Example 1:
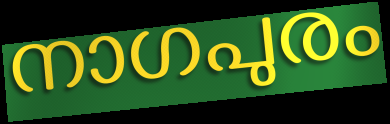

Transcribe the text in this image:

നാഗപുരം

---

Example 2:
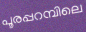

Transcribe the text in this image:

പൂരപ്പറമ്പിലെ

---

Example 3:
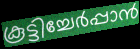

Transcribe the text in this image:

കൂട്ടിച്ചേർപ്പാൻ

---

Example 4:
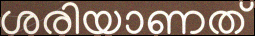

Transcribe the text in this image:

ശരിയാണത്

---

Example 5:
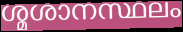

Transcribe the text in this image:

ശ്മശാനസ്ഥലം